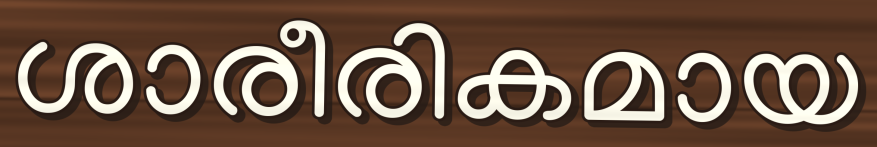
ശാരീരികമായ